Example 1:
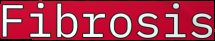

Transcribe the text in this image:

Fibrosis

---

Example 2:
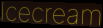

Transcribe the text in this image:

Icecream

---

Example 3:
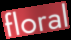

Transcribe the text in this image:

floral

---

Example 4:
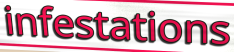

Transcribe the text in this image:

infestations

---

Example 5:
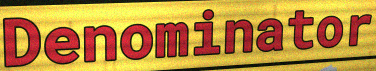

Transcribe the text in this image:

Denominator